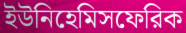
ইউনিহেমিসফেরিক